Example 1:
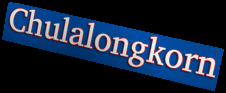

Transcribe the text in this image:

Chulalongkorn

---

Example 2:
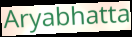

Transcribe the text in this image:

Aryabhatta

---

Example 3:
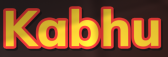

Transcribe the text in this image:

Kabhu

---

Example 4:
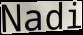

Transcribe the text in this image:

Nadi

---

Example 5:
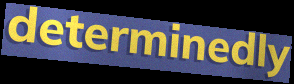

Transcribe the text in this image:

determinedly